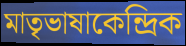
মাতৃভাষাকেন্দ্রিক